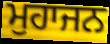
ਮੁਹਾਜਨ